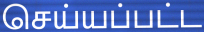
செய்யப்பட்ட